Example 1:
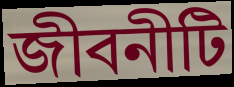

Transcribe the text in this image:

জীবনীটি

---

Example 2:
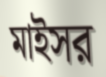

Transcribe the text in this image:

মাইসর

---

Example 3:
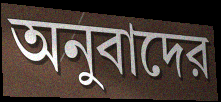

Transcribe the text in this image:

অনুবাদের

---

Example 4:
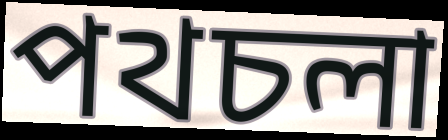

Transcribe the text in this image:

পথচলা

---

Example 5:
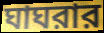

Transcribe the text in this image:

ঘাঘরার